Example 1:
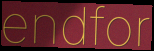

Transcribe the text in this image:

endfor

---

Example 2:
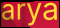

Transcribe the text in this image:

arya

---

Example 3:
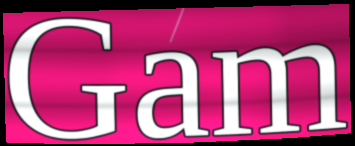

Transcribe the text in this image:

Gam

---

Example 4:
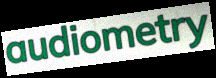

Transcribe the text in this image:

audiometry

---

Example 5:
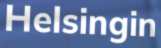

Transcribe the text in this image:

Helsingin